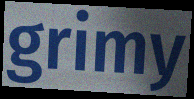
grimy